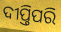
ଦୀପ୍ତିପରି